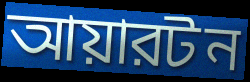
আয়ারটন